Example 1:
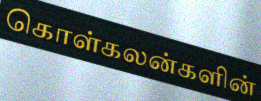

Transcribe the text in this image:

கொள்கலன்களின்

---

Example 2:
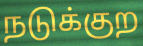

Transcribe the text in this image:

நடுக்குற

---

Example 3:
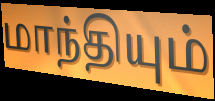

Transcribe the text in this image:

மாந்தியும்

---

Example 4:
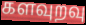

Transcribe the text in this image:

களவுறவு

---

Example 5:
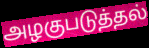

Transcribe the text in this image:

அழகுபடுத்தல்